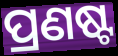
ପ୍ରଣଷ୍ଟ